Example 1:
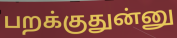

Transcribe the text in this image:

பறக்குதுன்னு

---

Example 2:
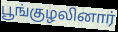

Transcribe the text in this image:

பூங்குழலினார்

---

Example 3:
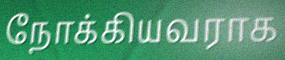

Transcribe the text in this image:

நோக்கியவராக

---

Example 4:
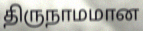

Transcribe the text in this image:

திருநாமமான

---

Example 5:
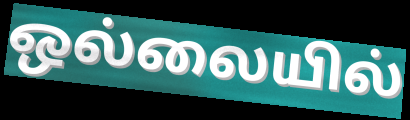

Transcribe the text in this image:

ஒல்லையில்